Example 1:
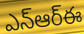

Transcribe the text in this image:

ఎన్ఆర్ఈ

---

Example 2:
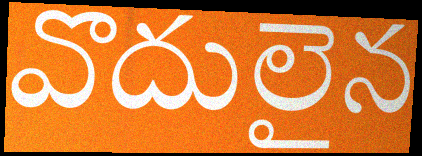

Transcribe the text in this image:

వొదులైన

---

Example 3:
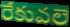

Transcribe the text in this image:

రేకువలె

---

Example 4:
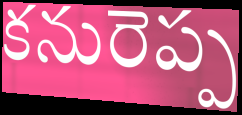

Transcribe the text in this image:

కనురెప్ప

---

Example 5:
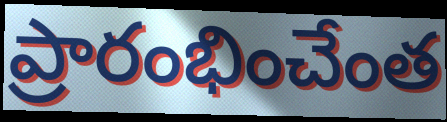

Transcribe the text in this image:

ప్రారంభించేంత